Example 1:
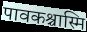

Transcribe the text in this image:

पावकश्चास्मि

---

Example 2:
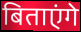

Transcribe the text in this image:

बिताएंगे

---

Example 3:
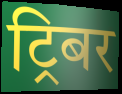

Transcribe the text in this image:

ट्रिबर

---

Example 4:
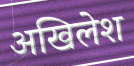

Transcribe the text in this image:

अखिलेश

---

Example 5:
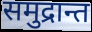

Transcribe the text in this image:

समुद्रान्त